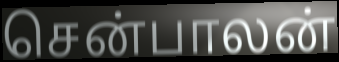
சென்பாலன்